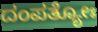
ದಂಪತ್ಯೋಃ